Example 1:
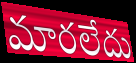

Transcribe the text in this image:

మారలేదు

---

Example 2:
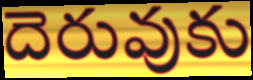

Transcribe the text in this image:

దెరువుకు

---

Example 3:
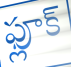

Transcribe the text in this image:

ఫ్లూక్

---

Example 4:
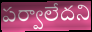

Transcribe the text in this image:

పర్వాలేదని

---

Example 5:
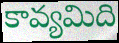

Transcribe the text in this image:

కావ్యమిది